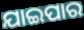
ଯାଇପାର